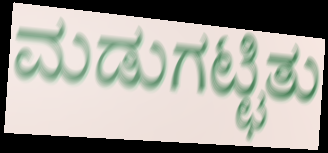
ಮಡುಗಟ್ಟಿತು